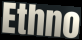
Ethno